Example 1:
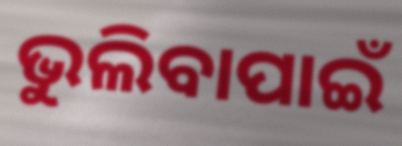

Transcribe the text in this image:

ଭୁଲିବାପାଇଁ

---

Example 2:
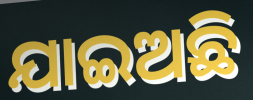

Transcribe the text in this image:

ଯାଇଅଛି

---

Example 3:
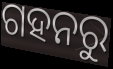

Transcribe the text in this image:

ଗହନରୁ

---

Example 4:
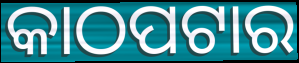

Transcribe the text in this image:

କାଠପଟାର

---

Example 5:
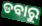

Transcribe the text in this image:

ଡବାରୁ